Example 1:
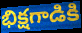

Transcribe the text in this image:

భిక్షగాడికి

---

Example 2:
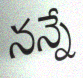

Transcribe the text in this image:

నన్నే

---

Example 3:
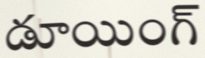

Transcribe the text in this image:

డూయింగ్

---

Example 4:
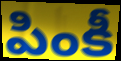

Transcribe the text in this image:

పింకీ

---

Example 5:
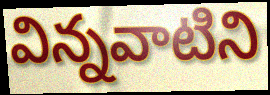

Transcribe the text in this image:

విన్నవాటిని